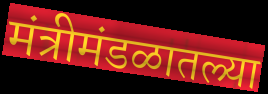
मंत्रीमंडळातल्या